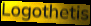
Logothetis